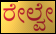
ರೇಲ್ವೇ